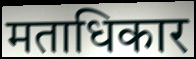
मताधिकार